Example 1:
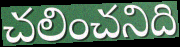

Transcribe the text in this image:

చలించనిది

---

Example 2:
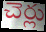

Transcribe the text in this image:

చెర్లు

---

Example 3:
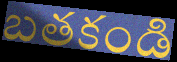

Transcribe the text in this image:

బతకండి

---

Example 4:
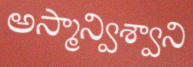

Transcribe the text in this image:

అస్మాన్విశ్వాని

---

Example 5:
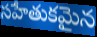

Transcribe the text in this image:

సహేతుకమైన